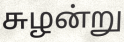
சுழன்று